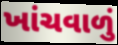
ખાંચવાળું